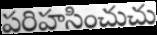
పరిహసించుచు